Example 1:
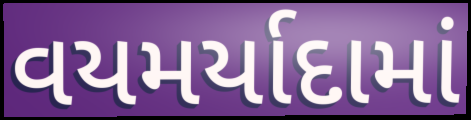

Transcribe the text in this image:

વયમર્યાદામાં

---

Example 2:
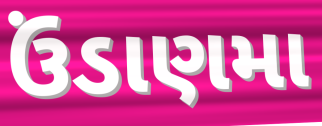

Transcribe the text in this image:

ઉંડાણમા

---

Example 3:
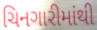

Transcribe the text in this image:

ચિનગારીમાંથી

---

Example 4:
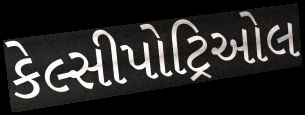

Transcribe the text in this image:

કેલ્સીપોટ્રિઓલ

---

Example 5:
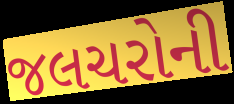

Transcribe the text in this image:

જલચરોની